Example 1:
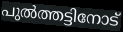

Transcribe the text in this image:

പുൽത്തട്ടിനോട്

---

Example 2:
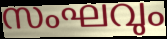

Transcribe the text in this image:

സംഘവും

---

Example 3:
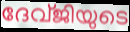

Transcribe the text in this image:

ദേവ്ജിയുടെ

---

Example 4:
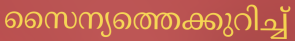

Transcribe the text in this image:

സൈന്യത്തെക്കുറിച്ച്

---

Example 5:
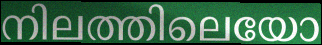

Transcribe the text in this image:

നിലത്തിലെയോ